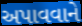
અપાવવાને